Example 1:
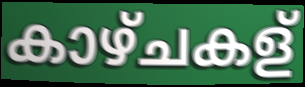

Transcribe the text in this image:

കാഴ്ചകള്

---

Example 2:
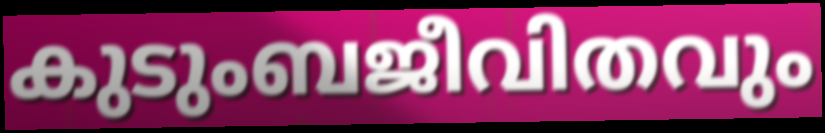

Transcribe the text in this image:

കുടുംബജീവിതവും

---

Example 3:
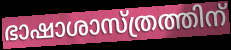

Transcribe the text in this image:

ഭാഷാശാസ്ത്രത്തിന്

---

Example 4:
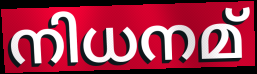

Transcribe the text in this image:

നിധനമ്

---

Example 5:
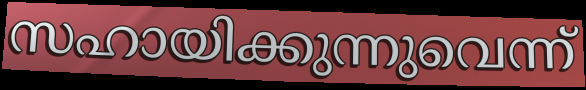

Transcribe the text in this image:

സഹായിക്കുന്നുവെന്ന്